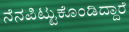
ನೆನಪಿಟ್ಟುಕೊಂಡಿದ್ದಾರೆ